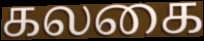
கலகை